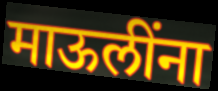
माऊलींना